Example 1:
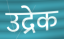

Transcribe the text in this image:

उद्रेक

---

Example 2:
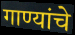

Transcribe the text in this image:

गाण्यांचे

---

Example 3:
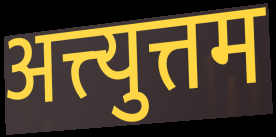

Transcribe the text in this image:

अत्त्युत्तम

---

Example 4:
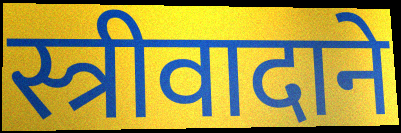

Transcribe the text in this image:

स्त्रीवादाने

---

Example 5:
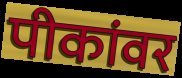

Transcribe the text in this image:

पीकांवर